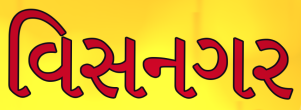
વિસનગર